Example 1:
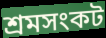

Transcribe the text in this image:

শ্রমসংকট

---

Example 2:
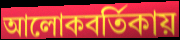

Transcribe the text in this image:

আলোকবর্তিকায়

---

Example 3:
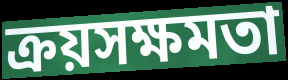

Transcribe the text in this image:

ক্রয়সক্ষমতা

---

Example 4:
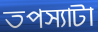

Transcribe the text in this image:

তপস্যাটা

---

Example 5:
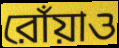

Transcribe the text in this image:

রোঁয়াও